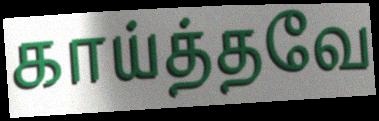
காய்த்தவே